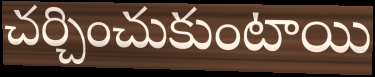
చర్చించుకుంటాయి